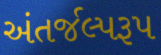
અંતર્જલ્પરૂપ